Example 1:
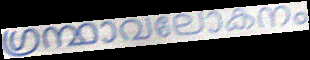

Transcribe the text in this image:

ഗ്രന്ഥാവലോകനം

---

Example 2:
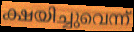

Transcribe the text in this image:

ക്ഷയിച്ചുവെന്ന്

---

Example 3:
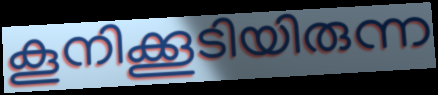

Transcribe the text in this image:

കൂനിക്കൂടിയിരുന്ന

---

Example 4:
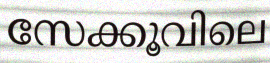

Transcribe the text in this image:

സേക്കൂവിലെ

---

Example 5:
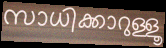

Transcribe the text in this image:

സാധിക്കാറുള്ളൂ